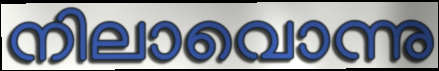
നിലാവൊന്നു